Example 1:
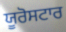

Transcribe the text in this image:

ਯੂਰੋਸਟਾਰ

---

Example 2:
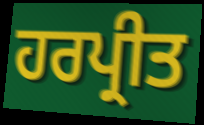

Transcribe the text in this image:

ਹਰਪ੍ਰੀਤ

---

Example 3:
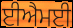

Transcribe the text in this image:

ਈਐਮਈ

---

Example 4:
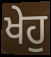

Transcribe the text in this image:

ਖੇਹੁ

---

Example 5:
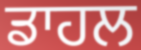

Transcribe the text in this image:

ਡਾਹਲ